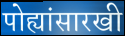
पोह्यांसारखी